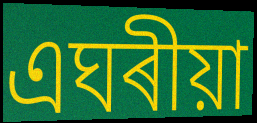
এঘৰীয়া